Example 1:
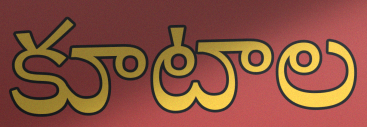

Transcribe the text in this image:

కూటాల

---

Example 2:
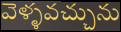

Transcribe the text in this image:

వెళ్ళవచ్చును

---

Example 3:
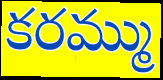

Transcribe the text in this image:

కరమ్ము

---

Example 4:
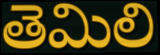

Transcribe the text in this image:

తెమిలి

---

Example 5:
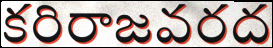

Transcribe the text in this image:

కరిరాజవరద